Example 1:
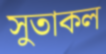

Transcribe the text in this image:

সুতাকল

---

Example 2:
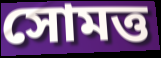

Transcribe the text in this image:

সোমত্ত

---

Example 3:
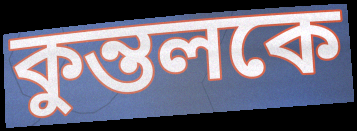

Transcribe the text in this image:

কুন্তলকে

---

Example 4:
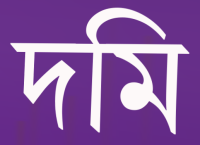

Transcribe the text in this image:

দমি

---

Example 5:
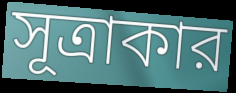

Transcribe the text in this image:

সূত্রাকার